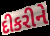
દીકરીને